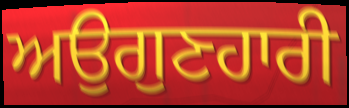
ਅਉਗੁਣਹਾਰੀ